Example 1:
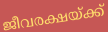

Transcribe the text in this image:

ജീവരക്ഷയ്ക്ക്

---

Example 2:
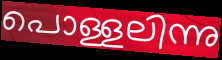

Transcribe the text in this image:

പൊള്ളലിന്നു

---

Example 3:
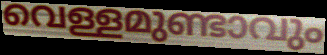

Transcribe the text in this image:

വെള്ളമുണ്ടാവും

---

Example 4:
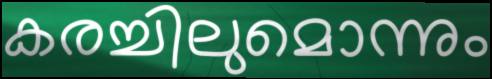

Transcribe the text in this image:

കരച്ചിലുമൊന്നും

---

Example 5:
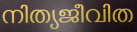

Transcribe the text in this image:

നിത്യജീവിത